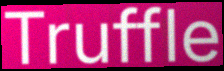
Truffle